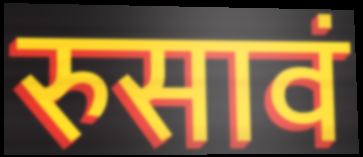
रुसावं